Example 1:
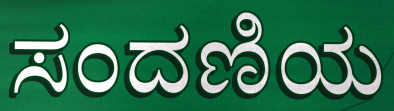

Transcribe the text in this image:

ಸಂದಣಿಯ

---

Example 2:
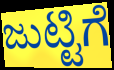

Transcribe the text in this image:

ಜುಟ್ಟಿಗೆ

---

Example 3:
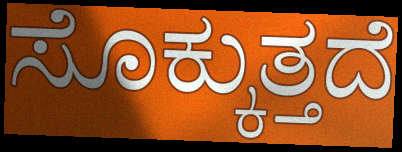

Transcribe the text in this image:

ಸೊಕ್ಕುತ್ತದೆ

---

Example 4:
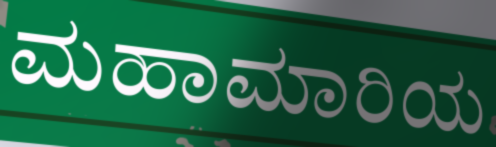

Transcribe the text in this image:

ಮಹಾಮಾರಿಯ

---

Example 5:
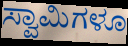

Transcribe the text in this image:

ಸ್ವಾಮಿಗಳೂ